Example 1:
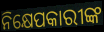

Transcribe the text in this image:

ନିକ୍ଷେପକାରୀଙ୍କ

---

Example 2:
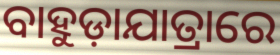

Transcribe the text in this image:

ବାହୁଡ଼ାଯାତ୍ରାରେ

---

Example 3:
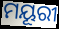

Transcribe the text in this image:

ମୟୂରୀ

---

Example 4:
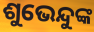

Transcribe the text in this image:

ଶୁଭେନ୍ଦୁଙ୍କ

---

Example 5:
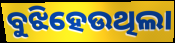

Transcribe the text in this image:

ବୁଝିହେଉଥିଲା